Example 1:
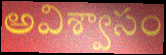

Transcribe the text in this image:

అవిశ్వాసం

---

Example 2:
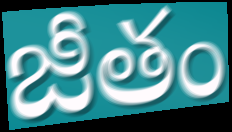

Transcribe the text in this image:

జీతం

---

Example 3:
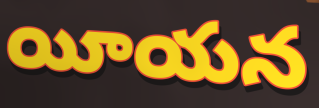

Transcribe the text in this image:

యీయన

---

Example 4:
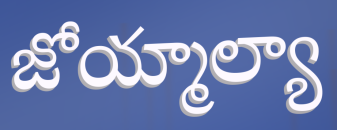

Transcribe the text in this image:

జోయ్మాల్యా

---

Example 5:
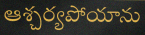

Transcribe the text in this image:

ఆశ్చర్యపోయాను